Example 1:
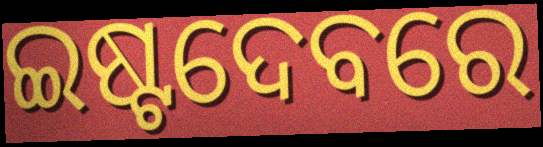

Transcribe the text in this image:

ଇଷ୍ଟଦେବରେ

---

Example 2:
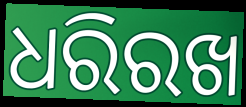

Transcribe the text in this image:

ଧରିରଖ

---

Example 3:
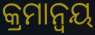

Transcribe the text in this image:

କ୍ରମାନ୍ୱୟ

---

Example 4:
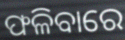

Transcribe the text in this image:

ଫଳିବାରେ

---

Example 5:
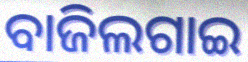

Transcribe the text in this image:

ବାଜିଲଗାଇ